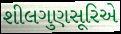
શીલગુણસૂરિએ